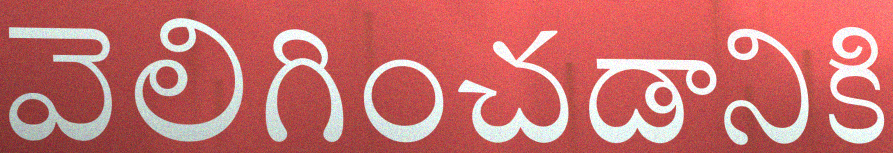
వెలిగించడానికి